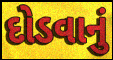
દોડવાનું